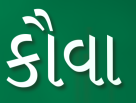
કૌવા